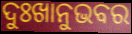
ଦୁଃଖାନୁଭବର